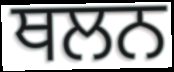
ਥਲਨ